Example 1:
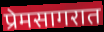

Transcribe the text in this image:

प्रेमसागरात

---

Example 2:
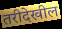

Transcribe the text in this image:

तरीदेखील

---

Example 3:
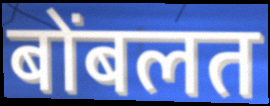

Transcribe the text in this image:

बोंबलत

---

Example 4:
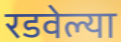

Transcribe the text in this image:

रडवेल्या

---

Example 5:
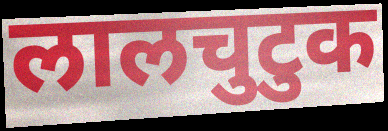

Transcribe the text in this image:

लालचुटुक